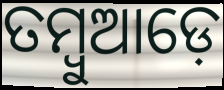
ତମ୍ବୁଆଡ଼େ